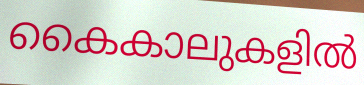
കൈകാലുകളിൽ